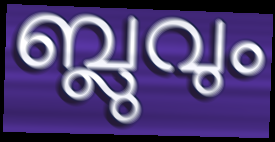
ബ്ലുവും